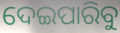
ଦେଇପାରିବୁ